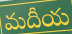
మదీయ